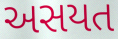
અસયત